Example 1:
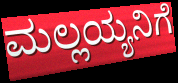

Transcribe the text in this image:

ಮಲ್ಲಯ್ಯನಿಗೆ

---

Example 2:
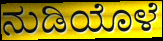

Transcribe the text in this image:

ನುಡಿಯೊಳೆ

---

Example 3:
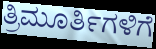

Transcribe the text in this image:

ತ್ರಿಮೂರ್ತಿಗಳಿಗೆ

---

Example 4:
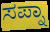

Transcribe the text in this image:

ಸಪ್ನಾ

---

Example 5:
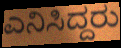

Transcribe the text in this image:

ಎನಿಸಿದ್ದರು